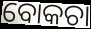
ବୋକଚା